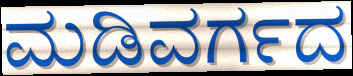
ಮಡಿವರ್ಗದ